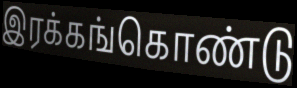
இரக்கங்கொண்டு